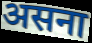
असना